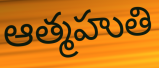
ఆత్మహుతి